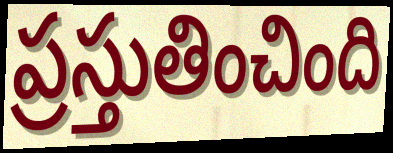
ప్రస్తుతించింది